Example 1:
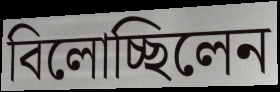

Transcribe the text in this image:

বিলোচ্ছিলেন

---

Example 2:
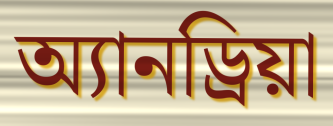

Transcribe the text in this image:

অ্যানড্রিয়া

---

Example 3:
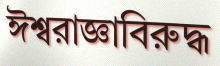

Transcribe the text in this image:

ঈশ্বরাজ্ঞাবিরুদ্ধ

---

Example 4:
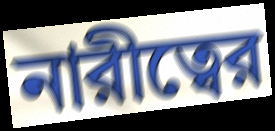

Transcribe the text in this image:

নারীত্বের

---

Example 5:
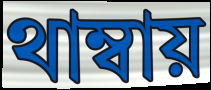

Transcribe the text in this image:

থাম্বায়